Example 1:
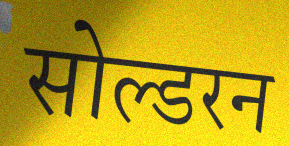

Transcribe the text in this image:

सोल्डरन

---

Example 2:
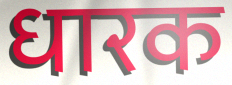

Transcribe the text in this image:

धारक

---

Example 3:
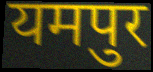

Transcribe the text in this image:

यमपुर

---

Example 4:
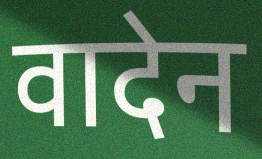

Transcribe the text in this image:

वादेन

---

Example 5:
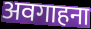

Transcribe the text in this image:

अवगाहना